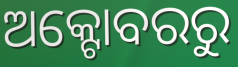
ଅକ୍ଟୋବରରୁ